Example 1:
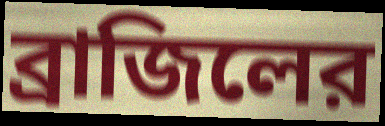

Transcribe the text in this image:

ব্রাজিলের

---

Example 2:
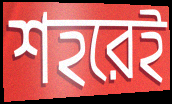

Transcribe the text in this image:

শহরেই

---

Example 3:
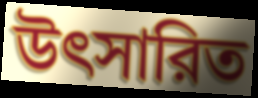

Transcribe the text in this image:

উৎসারিত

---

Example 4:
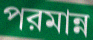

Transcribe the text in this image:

পরমান্ন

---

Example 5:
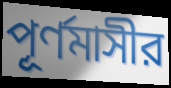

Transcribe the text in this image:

পূর্ণমাসীর